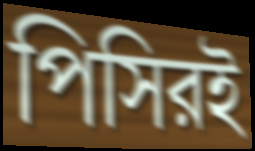
পিসিরই